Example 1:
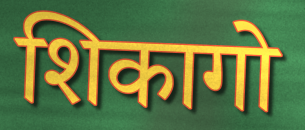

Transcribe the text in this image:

शिकागो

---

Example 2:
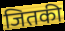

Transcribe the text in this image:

जितकी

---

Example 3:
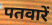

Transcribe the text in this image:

पतवारें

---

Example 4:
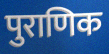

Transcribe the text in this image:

पुराणिक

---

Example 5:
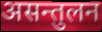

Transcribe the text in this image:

असन्तुलन